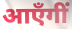
आएँगीं